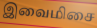
இவைமிசை